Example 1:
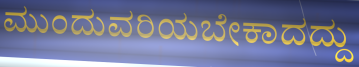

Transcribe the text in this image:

ಮುಂದುವರಿಯಬೇಕಾದದ್ದು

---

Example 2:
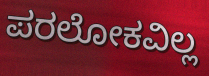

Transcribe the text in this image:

ಪರಲೋಕವಿಲ್ಲ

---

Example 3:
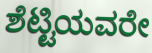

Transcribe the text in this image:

ಶೆಟ್ಟಿಯವರೇ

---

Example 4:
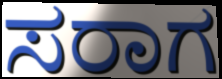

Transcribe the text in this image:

ಸರಾಗ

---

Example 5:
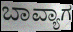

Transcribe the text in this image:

ಬಾವ್ಯಾಗ